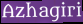
Azhagiri